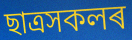
ছাত্ৰসকলৰ